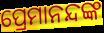
ପ୍ରେମାନନ୍ଦଙ୍କ